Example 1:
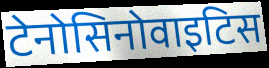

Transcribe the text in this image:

टेनोसिनोवाइटिस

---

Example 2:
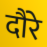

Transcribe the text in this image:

दौरे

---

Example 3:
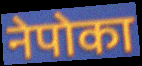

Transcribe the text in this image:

नेपोका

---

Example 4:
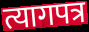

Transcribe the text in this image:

त्यागपत्र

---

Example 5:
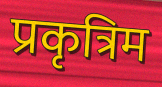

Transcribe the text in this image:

प्रकृत्रिम